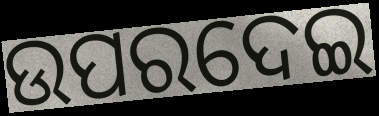
ଉପରଦେଇ